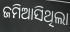
ଜମିଆସିଥିଲା